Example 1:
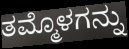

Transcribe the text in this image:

ತಮ್ಮೊಳಗನ್ನು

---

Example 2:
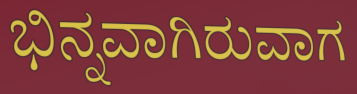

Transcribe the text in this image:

ಭಿನ್ನವಾಗಿರುವಾಗ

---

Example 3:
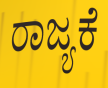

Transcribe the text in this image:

ರಾಜ್ಯಕೆ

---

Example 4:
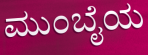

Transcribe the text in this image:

ಮುಂಬೈಯ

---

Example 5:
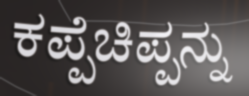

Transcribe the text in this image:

ಕಪ್ಪೆಚಿಪ್ಪನ್ನು